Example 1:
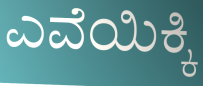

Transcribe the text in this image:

ಎವೆಯಿಕ್ಕಿ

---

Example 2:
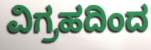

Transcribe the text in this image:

ವಿಗ್ರಹದಿಂದ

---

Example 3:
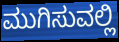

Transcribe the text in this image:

ಮುಗಿಸುವಲ್ಲಿ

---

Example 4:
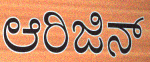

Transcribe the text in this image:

ಆರಿಜಿನ್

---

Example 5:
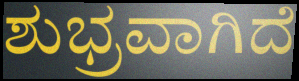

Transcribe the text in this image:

ಶುಭ್ರವಾಗಿದೆ